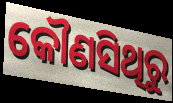
କୌଣସିଥିରୁ